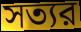
সত্যর